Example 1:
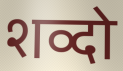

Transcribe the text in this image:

शव्दो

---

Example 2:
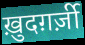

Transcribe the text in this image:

ख़ुदग़र्ज़ी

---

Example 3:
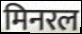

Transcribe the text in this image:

मिनरल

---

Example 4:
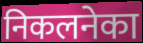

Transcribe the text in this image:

निकलनेका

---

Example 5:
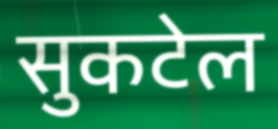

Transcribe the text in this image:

सुकटेल